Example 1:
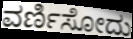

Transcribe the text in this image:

ವರ್ಣಿಸೋದು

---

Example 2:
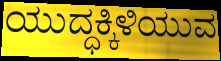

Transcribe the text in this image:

ಯುದ್ಧಕ್ಕಿಳಿಯುವ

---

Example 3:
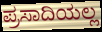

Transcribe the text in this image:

ಪ್ರಸಾದಿಯಲ್ಲ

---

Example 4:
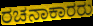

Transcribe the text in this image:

ರಚನಾಕಾರರು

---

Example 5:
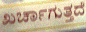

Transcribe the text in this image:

ಖರ್ಚಾಗುತ್ತದೆ